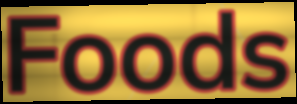
Foods